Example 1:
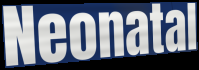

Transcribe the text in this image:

Neonatal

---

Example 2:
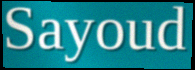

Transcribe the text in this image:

Sayoud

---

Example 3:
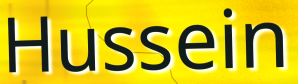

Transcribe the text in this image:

Hussein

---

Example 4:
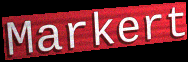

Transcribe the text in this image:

Markert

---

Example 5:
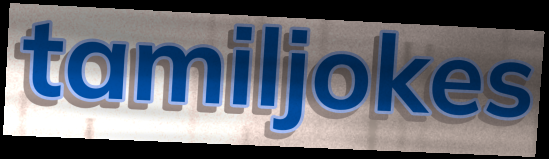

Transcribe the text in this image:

tamiljokes